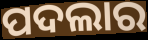
ପଦଲାର